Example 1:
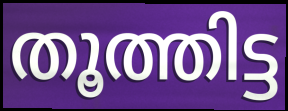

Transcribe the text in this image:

തൂത്തിട്ട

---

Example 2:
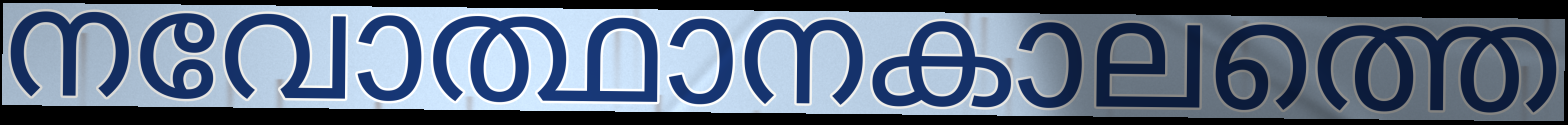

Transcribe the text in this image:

നവോത്ഥാനകാലത്തെ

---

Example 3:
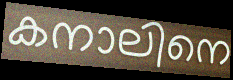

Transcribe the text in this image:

കനാലിനെ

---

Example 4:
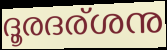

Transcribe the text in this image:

ദൂരദര്ശനു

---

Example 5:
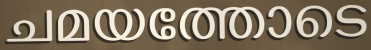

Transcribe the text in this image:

ചമയത്തോടെ